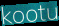
kootu